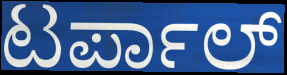
ಟರ್ಪಾಲ್